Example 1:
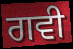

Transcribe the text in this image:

ਗਵੀ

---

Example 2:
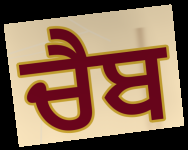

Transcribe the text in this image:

ਚੈਬ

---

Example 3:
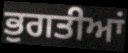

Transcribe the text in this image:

ਭੁਗਤੀਆਂ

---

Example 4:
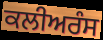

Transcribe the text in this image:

ਕਲੀਅਰੰਸ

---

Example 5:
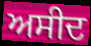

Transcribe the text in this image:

ਅਸੀਦ